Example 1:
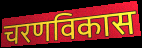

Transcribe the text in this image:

चरणविकास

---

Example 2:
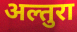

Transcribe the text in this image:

अल्तुरा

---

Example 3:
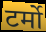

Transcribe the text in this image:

टर्मो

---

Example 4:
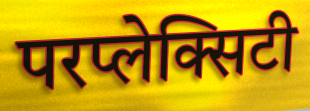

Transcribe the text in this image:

परप्लेक्सिटी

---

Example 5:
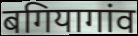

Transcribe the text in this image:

बगियागांव